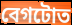
বেগটোত